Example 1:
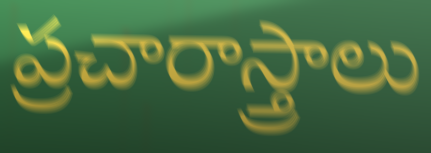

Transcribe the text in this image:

ప్రచారాస్త్రాలు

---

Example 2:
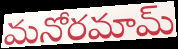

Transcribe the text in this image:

మనోరమామ్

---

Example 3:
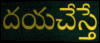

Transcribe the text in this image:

దయచేస్తే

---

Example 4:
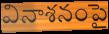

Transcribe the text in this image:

వినాశనంపై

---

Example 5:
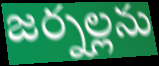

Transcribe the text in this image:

జర్నల్లను